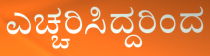
ಎಚ್ಚರಿಸಿದ್ದರಿಂದ